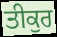
ਤੀਕੁਰ